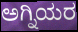
ಅಗ್ನಿಯರ